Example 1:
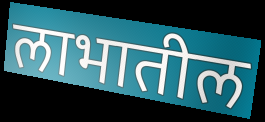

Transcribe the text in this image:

लाभातील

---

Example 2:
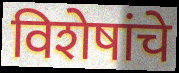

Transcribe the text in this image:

विशेषांचे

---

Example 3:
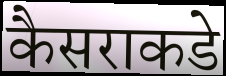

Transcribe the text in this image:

कैसराकडे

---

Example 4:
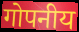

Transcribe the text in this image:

गोपनीय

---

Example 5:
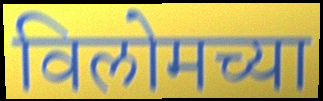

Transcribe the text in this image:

विलोमच्या